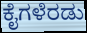
ಕೈಗಳೆರಡು